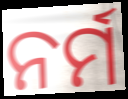
ନର୍ମ